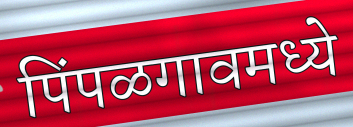
पिंपळगावमध्ये